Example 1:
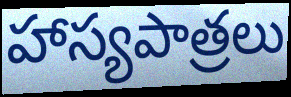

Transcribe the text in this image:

హాస్యపాత్రలు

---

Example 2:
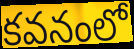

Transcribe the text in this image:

కవనంలో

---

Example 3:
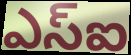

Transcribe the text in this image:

ఎస్ఐ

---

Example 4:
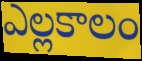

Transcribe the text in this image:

ఎల్లకాలం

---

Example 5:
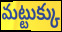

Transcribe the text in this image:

మట్టుక్కు